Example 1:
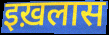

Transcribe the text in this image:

इख़लास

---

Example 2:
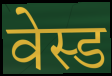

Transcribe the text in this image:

वेस्ड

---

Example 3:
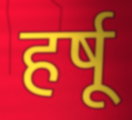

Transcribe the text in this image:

हर्षू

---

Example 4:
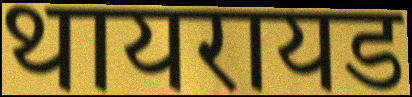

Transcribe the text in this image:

थायरायड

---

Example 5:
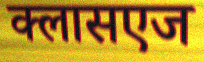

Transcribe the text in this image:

क्लासएज